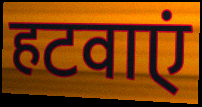
हटवाएं